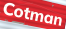
Cotman